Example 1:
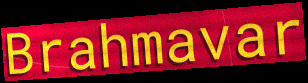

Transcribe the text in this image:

Brahmavar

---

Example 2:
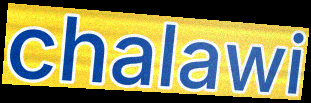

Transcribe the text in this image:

chalawi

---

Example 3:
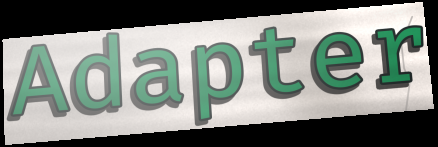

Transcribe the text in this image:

Adapter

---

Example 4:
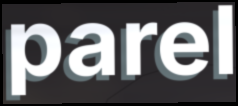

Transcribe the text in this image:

parel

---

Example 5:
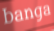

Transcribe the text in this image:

banga